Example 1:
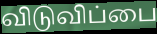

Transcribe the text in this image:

விடுவிப்பை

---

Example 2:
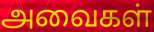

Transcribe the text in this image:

அவைகள்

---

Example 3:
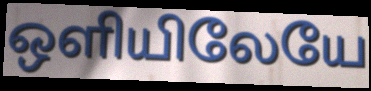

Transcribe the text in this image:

ஒளியிலேயே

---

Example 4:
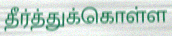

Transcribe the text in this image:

தீர்த்துக்கொள்ள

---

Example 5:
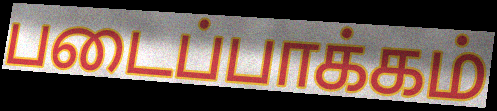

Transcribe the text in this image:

படைப்பாக்கம்